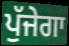
ਪੁੱਜੇਗਾ